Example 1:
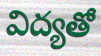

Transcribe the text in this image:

విద్యతో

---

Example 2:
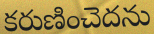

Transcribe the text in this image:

కరుణించెదను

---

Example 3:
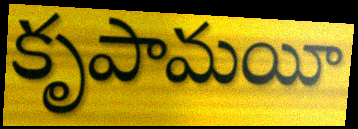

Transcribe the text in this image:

కృపామయీ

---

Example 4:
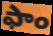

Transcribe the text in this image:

ఫాం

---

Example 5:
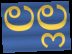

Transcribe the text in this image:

లల్ల